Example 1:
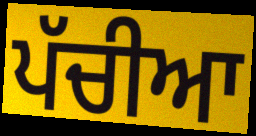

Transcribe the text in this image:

ਪੱਚੀਆ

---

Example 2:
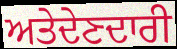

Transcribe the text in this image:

ਅਤੇਦੇਣਦਾਰੀ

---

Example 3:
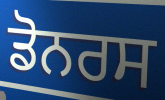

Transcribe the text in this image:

ਡੋਨਰਸ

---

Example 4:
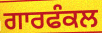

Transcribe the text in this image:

ਗਾਰਫੰਕਲ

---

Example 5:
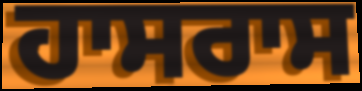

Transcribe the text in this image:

ਹਾਸਰਾਸ